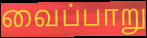
வைப்பாறு